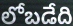
లోబడేది